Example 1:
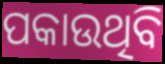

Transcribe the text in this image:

ପକାଉଥିବି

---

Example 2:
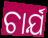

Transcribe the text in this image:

ଚାର୍ଯ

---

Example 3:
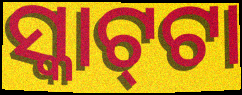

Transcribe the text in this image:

ସ୍କାଟ୍‌ଟା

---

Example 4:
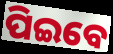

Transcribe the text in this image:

ପିଇବେ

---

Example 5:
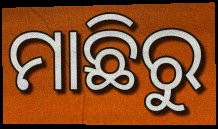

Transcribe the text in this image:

ମାଛିରୁ